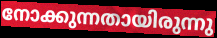
നോക്കുന്നതായിരുന്നു